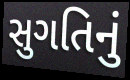
સુગતિનું